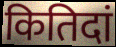
कितिदां